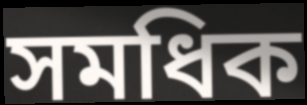
সমধিক